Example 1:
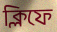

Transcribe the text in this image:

ক্লিফে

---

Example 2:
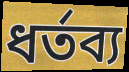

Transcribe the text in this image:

ধর্তব্য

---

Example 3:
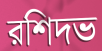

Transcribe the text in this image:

রশিদভ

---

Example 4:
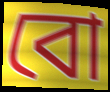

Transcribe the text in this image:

বো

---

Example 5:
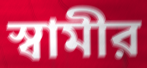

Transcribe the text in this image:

স্বামীর